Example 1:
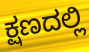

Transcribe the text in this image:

ಕ್ಷಣದಲ್ಲಿ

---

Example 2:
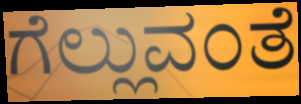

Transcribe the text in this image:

ಗೆಲ್ಲುವಂತೆ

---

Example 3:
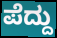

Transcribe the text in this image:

ಪೆದ್ದು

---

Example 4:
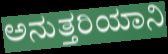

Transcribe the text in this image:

ಅನುತ್ತರಿಯಾನಿ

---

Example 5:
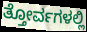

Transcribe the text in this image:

ತ್ತೋರ್ವಗಳಲ್ಲಿ